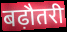
बढ़ौतरी